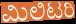
ಮಿಲಿಟರಿ